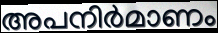
അപനിർമാണം